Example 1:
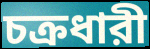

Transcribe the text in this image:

চক্রধারী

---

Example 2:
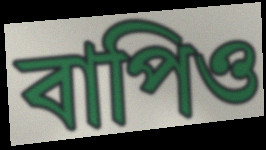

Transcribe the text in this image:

বাপিও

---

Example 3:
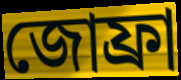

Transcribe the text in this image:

জোফ্রা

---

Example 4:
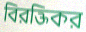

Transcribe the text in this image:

বিরক্তিকর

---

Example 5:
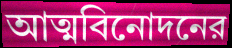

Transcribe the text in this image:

আত্মবিনোদনের